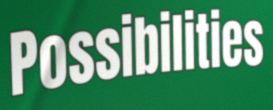
Possibilities